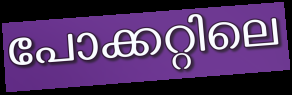
പോക്കറ്റിലെ